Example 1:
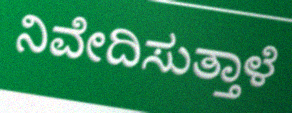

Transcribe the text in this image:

ನಿವೇದಿಸುತ್ತಾಳೆ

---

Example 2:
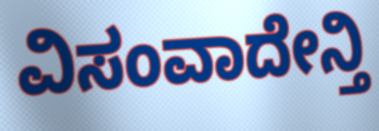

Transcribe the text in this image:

ವಿಸಂವಾದೇನ್ತಿ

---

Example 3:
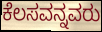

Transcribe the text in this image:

ಕೆಲಸವನ್ನವರು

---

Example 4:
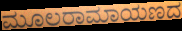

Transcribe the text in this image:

ಮೂಲರಾಮಾಯಣದ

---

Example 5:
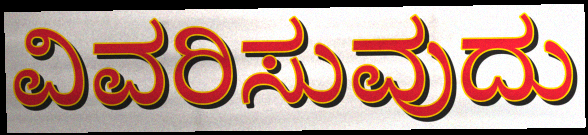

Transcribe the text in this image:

ವಿವರಿಸುವುದು